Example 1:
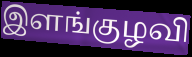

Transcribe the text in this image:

இளங்குழவி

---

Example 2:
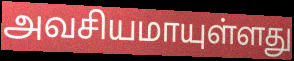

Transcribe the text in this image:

அவசியமாயுள்ளது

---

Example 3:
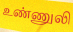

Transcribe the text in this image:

உண்ணுலி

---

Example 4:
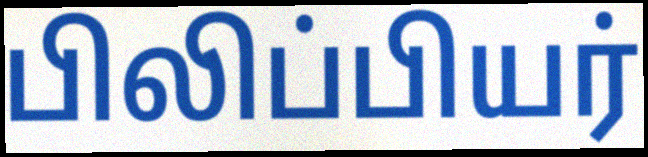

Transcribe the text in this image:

பிலிப்பியர்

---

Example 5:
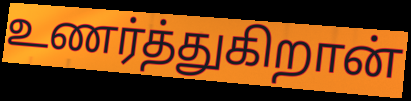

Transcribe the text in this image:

உணர்த்துகிறான்